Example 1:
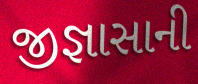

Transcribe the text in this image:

જીજ્ઞાસાની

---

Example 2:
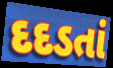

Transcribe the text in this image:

દદડતાં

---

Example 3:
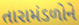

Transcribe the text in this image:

તારામંડળોને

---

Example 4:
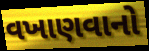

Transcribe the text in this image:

વખાણવાનો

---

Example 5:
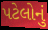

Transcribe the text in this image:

પટેલોનું